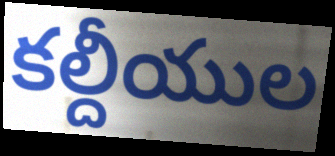
కల్దీయుల